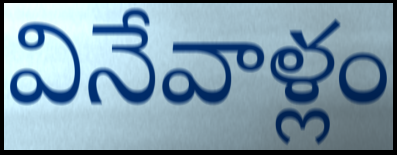
వినేవాళ్లం